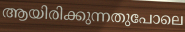
ആയിരിക്കുന്നതുപോലെ